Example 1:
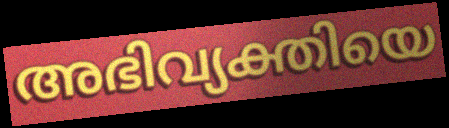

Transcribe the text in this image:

അഭിവ്യക്തിയെ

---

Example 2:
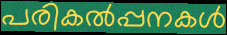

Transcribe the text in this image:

പരികൽപ്പനകൾ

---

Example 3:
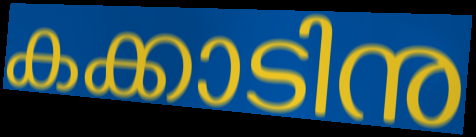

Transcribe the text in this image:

കക്കാടിനു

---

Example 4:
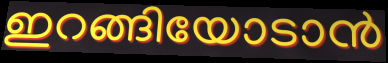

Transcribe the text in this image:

ഇറങ്ങിയോടാൻ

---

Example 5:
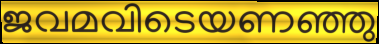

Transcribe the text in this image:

ജവമവിടെയണഞ്ഞു